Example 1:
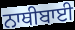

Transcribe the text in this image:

ਨਾਥੀਬਾਈ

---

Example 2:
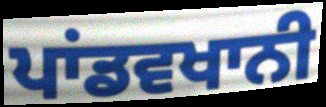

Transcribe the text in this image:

ਪਾਂਡਵਖਾਨੀ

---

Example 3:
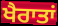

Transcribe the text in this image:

ਖੈਰਾਤਾਂ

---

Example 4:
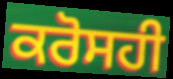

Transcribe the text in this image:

ਕਰੋਸਹੀ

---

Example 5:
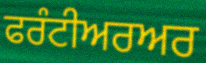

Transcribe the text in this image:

ਫਰੰਟੀਅਰਅਰ